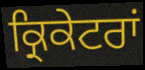
ਕ੍ਰਿਕੇਟਰਾਂ